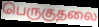
பெருகுதலை